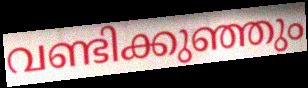
വണ്ടിക്കുഞ്ഞും